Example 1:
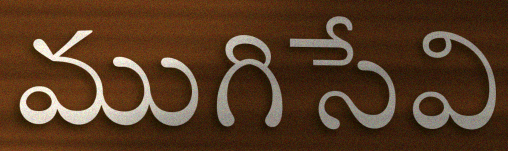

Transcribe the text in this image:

ముగిసేవి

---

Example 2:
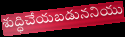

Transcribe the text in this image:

శుద్ధిచేయబడుననియు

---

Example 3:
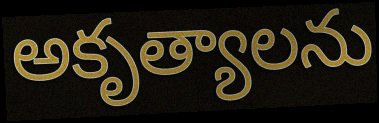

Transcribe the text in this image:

అకృత్యాలను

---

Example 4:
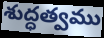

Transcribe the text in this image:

శుద్ధత్వము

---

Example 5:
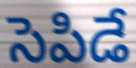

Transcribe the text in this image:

సెపిడే